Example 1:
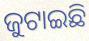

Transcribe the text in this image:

ଜୁଟାଇଛି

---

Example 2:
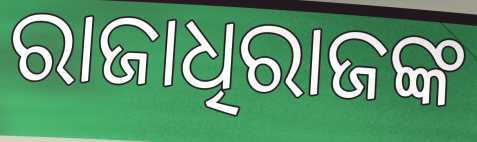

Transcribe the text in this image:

ରାଜାଧିରାଜଙ୍କ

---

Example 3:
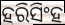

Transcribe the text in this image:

ହରିସିଂହ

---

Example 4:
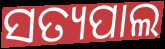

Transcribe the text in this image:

ସତ୍ୟପାଲ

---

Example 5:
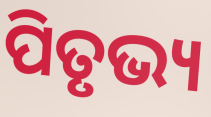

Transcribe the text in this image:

ପିତୃଭ୍ୟ